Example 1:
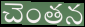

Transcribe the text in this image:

చెంతన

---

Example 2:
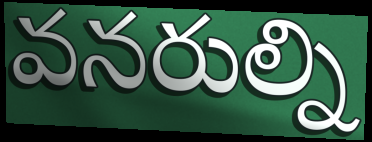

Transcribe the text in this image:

వనరుల్ని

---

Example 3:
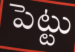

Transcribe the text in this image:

పెట్టు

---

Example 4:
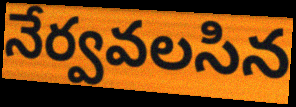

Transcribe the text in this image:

నేర్వవలసిన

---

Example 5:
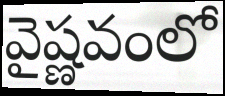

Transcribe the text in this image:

వైష్ణవంలో